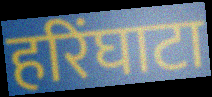
हरिंघाटा